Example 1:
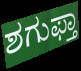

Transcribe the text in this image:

ಶಗುಫ್ತಾ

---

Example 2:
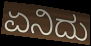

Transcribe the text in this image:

ಏನಿದು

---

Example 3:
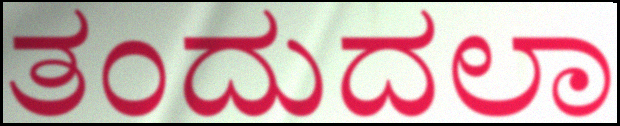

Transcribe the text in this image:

ತಂದುದಲಾ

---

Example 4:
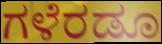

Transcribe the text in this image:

ಗಳೆರಡೂ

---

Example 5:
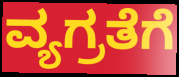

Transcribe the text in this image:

ವ್ಯಗ್ರತೆಗೆ